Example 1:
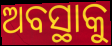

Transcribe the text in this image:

ଅବସ୍ଥାକୁ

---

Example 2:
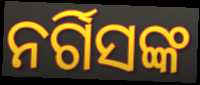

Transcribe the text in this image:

ନର୍ଗିସଙ୍କ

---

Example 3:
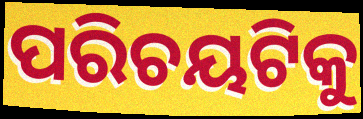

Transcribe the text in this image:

ପରିଚୟଟିକୁ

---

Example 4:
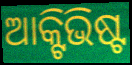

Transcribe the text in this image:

ଆକ୍ଟିଭିଷ୍ଟ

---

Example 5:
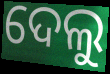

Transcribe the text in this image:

ଦେଲୁ